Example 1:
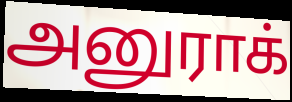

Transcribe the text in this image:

அனுராக்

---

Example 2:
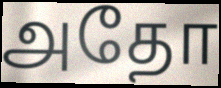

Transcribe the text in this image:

அதோ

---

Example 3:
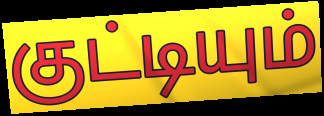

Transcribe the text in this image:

குட்டியும்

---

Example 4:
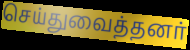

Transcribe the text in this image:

செய்துவைத்தனர்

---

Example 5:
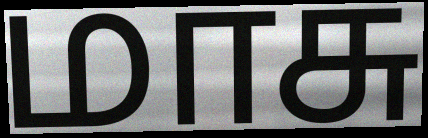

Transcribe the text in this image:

மாசு